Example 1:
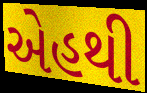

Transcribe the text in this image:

એહથી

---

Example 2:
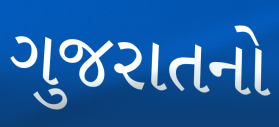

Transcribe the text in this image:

ગુજરાતનો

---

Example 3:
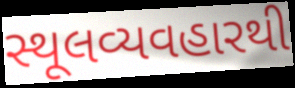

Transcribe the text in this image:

સ્થૂલવ્યવહારથી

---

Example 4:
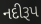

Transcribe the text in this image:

નદીરૂપ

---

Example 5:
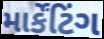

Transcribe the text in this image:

માર્કેંટિંગ